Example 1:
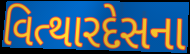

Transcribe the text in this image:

વિત્થારદેસના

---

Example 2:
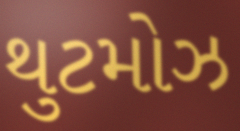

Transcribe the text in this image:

થુટમોઝ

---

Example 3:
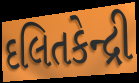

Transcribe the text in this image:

દલિતકેન્દ્રી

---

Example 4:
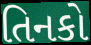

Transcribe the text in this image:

તિનકો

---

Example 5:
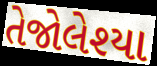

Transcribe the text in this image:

તેજોલેશ્યા